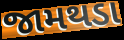
જામથડા